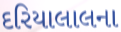
દરિયાલાલના